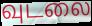
வுடலை